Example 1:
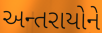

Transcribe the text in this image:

અન્તરાયોને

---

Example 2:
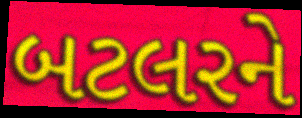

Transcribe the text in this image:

બટલરને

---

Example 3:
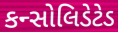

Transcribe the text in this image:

કન્સોલિડેટેડ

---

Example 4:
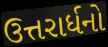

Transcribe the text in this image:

ઉત્તરાર્ધનો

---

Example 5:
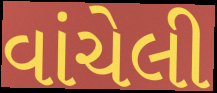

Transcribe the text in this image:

વાંચેલી